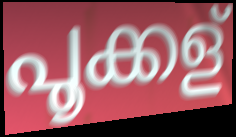
പൂക്കള്